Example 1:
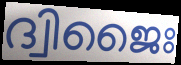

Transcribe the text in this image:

ദ്വിജൈഃ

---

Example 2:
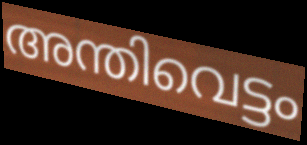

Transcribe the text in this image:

അന്തിവെട്ടം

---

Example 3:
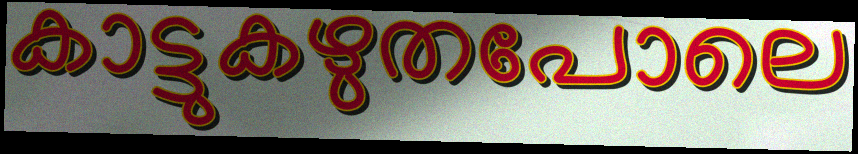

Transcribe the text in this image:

കാട്ടുകഴുതപോലെ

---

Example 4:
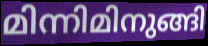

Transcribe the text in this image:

മിന്നിമിനുങ്ങി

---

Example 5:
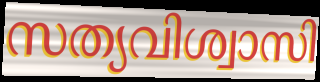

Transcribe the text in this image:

സത്യവിശ്വാസി